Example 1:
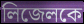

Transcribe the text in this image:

লিজেলকে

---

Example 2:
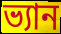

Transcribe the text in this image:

ভ্যান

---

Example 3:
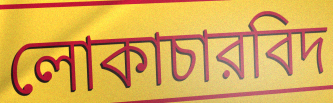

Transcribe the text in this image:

লোকাচারবিদ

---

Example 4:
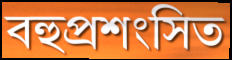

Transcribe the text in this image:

বহুপ্রশংসিত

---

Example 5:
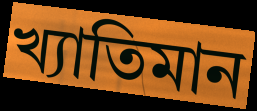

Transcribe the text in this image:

খ্যাতিমান